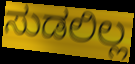
ಸುಡಲಿಲ್ಲ